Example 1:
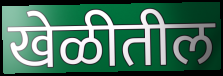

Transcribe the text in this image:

खेळीतील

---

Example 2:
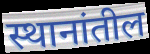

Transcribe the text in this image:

स्थानांतील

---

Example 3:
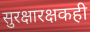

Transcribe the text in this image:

सुरक्षारक्षकही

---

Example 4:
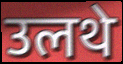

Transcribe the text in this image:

उलथे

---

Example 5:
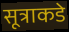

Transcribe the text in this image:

सूत्राकडे